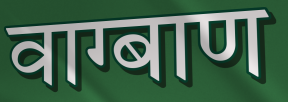
वाग्बाण